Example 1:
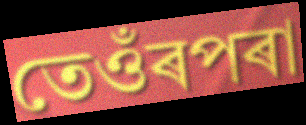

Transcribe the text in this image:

তেওঁৰপৰা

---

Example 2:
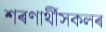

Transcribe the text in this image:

শৰণাৰ্থীসকলৰ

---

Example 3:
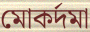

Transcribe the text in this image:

মোকৰ্দমা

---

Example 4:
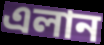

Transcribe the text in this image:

এলান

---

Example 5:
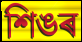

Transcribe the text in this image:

শিঙৰ